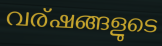
വര്ഷങ്ങളുടെ